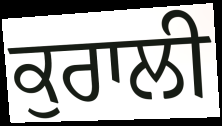
ਕੁਰਾਲੀ